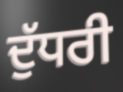
ਦੁੱਧਰੀ